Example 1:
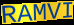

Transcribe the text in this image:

RAMVI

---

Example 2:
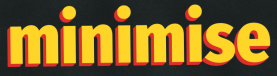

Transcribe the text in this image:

minimise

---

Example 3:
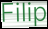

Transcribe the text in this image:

Filip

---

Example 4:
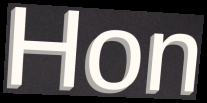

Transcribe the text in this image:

Hon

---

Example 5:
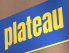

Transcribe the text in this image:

plateau